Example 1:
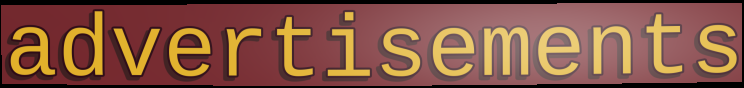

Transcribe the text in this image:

advertisements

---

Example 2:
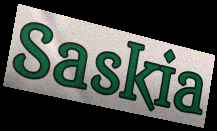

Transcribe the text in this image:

Saskia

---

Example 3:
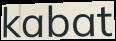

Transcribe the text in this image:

kabat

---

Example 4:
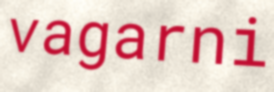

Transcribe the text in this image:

vagarni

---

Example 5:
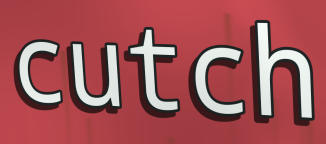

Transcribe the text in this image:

cutch